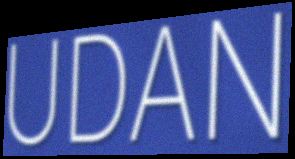
UDAN